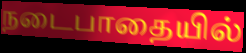
நடைபாதையில்